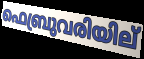
ഫെബ്രുവരിയില്